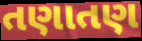
તણાતણ